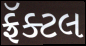
ફ્રૅક્ટલ